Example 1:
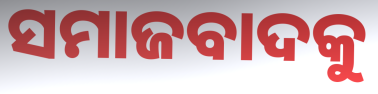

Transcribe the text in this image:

ସମାଜବାଦକୁ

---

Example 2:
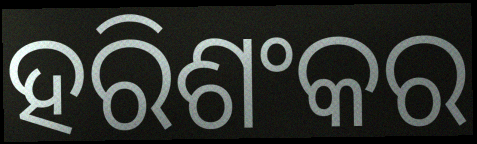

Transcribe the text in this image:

ହରିଶଂକର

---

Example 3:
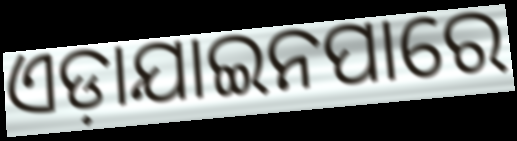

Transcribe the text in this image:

ଏଡ଼ାଯାଇନପାରେ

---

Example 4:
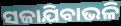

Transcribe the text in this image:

ସଜାଯିବାଭଳି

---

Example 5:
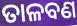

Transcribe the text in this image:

ତାଳବଣ